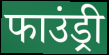
फाउंड्री